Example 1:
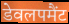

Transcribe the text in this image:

डेवलपमैंट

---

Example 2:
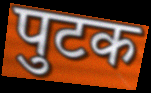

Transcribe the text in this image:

पुटक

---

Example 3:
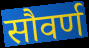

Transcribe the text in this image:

सौवर्ण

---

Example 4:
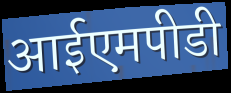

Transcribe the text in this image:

आईएमपीडी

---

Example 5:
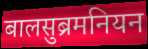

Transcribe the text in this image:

बालसुब्रमनियन